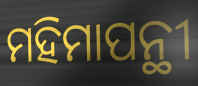
ମହିମାପନ୍ଥୀ